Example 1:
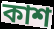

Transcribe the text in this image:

কাশ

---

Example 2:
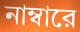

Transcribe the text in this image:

নাম্বারে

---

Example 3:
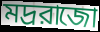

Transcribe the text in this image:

মদ্ররাজো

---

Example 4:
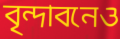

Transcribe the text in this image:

বৃন্দাবনেও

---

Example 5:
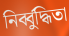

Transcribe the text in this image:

নির্ব্বুদ্ধিতা